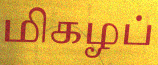
மிகழப்